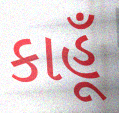
કાહૂઁ